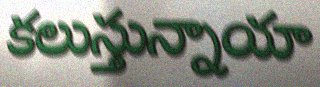
కలుస్తున్నాయా